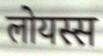
लोयस्स